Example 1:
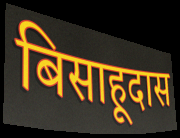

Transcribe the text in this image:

बिसाहूदास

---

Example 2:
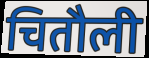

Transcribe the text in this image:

चितौली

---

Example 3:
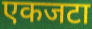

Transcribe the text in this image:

एकजटा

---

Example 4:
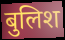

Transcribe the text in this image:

बुलिश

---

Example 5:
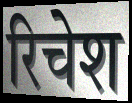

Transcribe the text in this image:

रिचेश